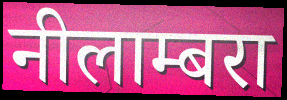
नीलाम्बरा